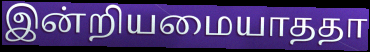
இன்றியமையாததா